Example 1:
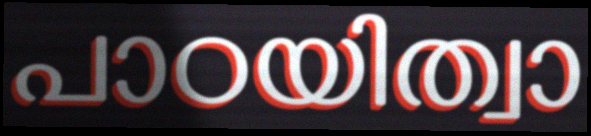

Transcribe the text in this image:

പാഠയിത്വാ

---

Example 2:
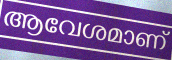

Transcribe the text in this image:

ആവേശമാണ്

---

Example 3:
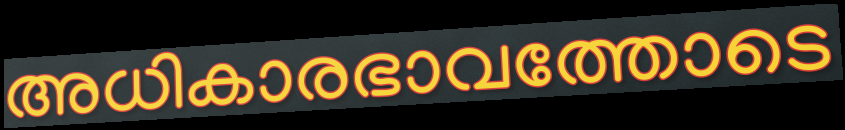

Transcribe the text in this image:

അധികാരഭാവത്തോടെ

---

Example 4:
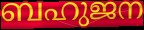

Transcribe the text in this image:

ബഹുജന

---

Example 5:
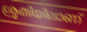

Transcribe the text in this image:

ശ്രുതിയിലാണ്